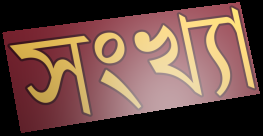
সংখ্যা